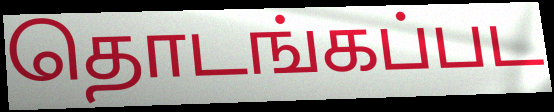
தொடங்கப்பட